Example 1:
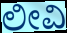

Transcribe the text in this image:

ಲೀವಿ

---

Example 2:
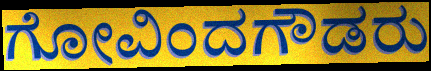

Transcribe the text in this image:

ಗೋವಿಂದಗೌಡರು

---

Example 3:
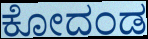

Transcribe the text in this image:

ಕೋದಂಡ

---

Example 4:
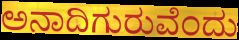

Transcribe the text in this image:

ಅನಾದಿಗುರುವೆಂದು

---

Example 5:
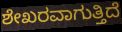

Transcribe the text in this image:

ಶೇಖರವಾಗುತ್ತಿದೆ